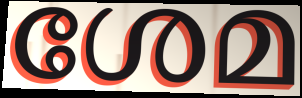
ശേമ